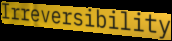
Irreversibility